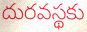
దురవస్థకు